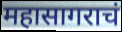
महासागराचं